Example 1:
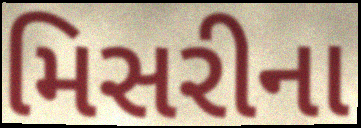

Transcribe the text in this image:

મિસરીના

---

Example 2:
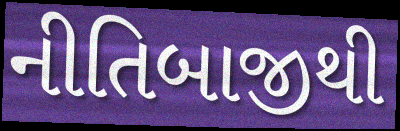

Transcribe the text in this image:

નીતિબાજીથી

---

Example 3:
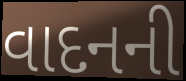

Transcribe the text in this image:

વાદનની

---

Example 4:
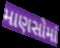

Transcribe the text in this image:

માણસોમાં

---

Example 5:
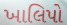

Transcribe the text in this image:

ખાલિપો